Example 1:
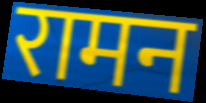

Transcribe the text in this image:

रामन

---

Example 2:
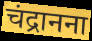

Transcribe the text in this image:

चंद्रानना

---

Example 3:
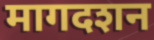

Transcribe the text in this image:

मागदशन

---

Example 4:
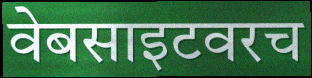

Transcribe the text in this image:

वेबसाइटवरच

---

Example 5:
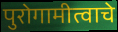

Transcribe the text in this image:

पुरोगामीत्वाचे